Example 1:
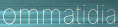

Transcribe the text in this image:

ommatidia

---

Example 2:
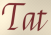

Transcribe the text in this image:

Tat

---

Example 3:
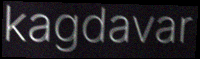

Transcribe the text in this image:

kagdavar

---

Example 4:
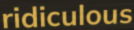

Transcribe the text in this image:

ridiculous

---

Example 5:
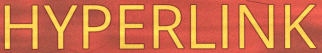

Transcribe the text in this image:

HYPERLINK